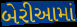
બેરીઆમાં